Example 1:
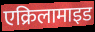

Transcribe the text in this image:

एक्रिलामाइड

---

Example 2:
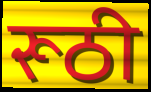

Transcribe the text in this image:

रूठी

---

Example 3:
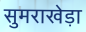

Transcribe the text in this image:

सुमराखेड़ा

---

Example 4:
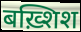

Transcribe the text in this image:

बख़्शिश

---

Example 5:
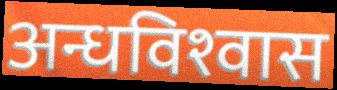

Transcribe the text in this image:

अन्धविश्वास